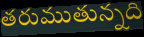
తరుముతున్నది